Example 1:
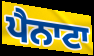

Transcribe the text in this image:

ਪੈਨਾਟਾ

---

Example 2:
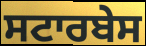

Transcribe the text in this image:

ਸਟਾਰਬੇਸ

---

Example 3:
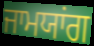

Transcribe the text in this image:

ਜਾਮਯਾਂਗ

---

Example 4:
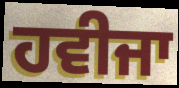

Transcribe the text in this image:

ਹਵੀਜਾ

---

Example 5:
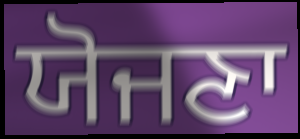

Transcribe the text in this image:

ਯੋਜਣਾ